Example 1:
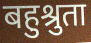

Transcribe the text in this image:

बहुश्रुता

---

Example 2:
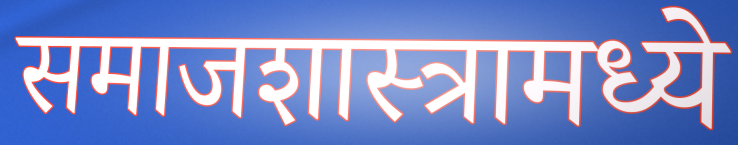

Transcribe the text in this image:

समाजशास्त्रामध्ये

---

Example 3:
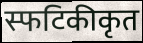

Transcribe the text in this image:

स्फटिकीकृत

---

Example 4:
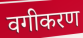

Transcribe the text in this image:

वगीकरण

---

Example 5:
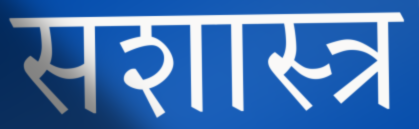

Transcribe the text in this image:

सशास्त्र